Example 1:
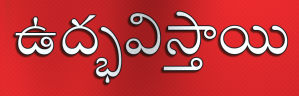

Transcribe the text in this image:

ఉద్భవిస్తాయి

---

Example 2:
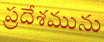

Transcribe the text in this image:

ప్రదేశమును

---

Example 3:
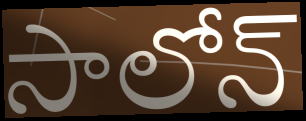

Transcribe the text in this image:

సాలోన్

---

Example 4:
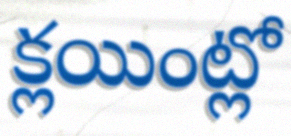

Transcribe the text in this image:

క్లయింట్లో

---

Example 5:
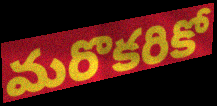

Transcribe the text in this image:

మరొకరికో